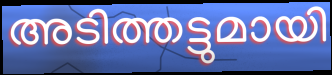
അടിത്തട്ടുമായി